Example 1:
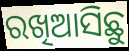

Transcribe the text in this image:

ରଖିଆସିଛୁ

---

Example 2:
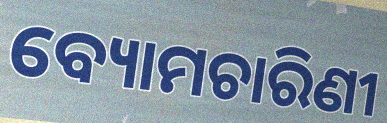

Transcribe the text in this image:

ବ୍ୟୋମଚାରିଣୀ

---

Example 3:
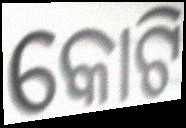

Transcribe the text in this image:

କୋଟି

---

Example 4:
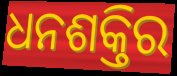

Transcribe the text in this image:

ଧନଶକ୍ତିର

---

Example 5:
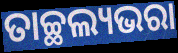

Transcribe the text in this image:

ତାଚ୍ଛଲ୍ୟଭରା